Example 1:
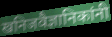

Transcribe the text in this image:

खनिजवैज्ञानिकांनी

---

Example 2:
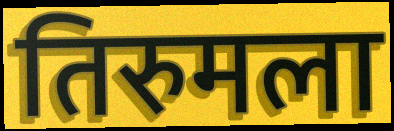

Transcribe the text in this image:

तिरुमला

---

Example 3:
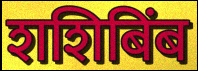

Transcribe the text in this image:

शशिबिंब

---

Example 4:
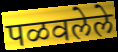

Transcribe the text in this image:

पळवलेले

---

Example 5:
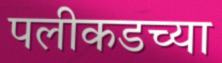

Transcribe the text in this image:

पलीकडच्या